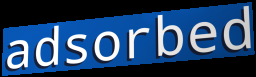
adsorbed